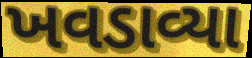
ખવડાવ્યા